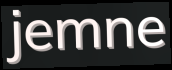
jemne